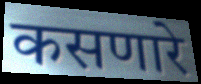
कसणारे